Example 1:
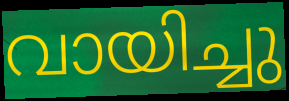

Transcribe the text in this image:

വായിച്ചു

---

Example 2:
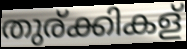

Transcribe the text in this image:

തുര്ക്കികള്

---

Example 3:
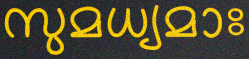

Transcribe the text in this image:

സുമധ്യമാഃ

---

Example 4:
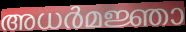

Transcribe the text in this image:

അധർമജ്ഞാ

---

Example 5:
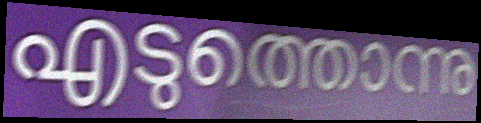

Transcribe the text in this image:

എടുത്തൊന്നു